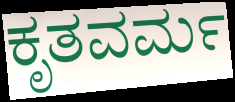
ಕೃತವರ್ಮ